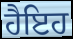
ਹੈਇਹ